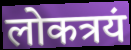
लोकत्रयं